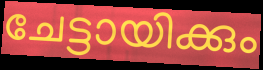
ചേട്ടായിക്കും